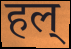
हल्